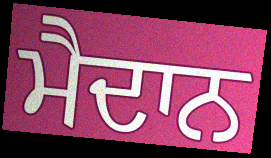
ਮੈਦਾਨ